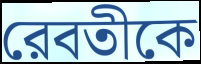
রেবতীকে